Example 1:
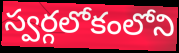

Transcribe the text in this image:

స్వర్గలోకంలోని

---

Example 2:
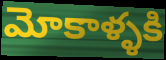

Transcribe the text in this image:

మోకాళ్ళకి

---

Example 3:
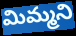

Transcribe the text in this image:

మిమ్మని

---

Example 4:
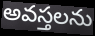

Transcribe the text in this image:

అవస్తలను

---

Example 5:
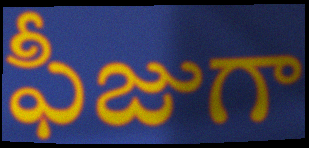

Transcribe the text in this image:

ఫీజుగా